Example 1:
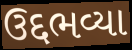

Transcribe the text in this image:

ઉદ્દભવ્યા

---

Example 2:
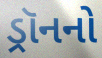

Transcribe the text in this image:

ડ્રૉનનો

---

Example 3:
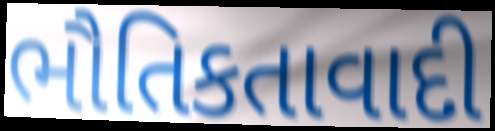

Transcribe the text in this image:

ભૌતિકતાવાદી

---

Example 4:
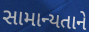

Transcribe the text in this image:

સામાન્યતાને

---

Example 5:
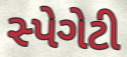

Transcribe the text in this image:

સ્પેગેટી